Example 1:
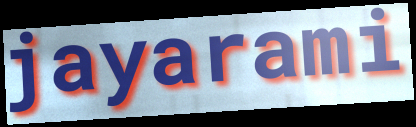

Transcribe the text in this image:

jayarami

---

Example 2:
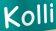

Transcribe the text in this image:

Kolli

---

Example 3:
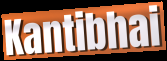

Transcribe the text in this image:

Kantibhai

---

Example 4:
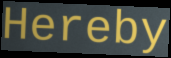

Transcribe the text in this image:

Hereby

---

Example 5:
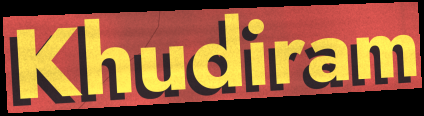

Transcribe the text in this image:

Khudiram